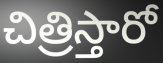
చిత్రిస్తారో